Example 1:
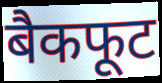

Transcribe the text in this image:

बैकफूट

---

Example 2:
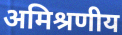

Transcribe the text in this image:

अमिश्रणीय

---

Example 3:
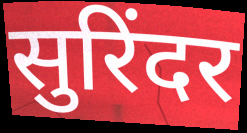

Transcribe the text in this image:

सुरिंदर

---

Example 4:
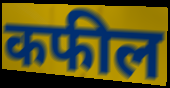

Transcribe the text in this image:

कफील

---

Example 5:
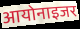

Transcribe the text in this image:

आयोनाइजर